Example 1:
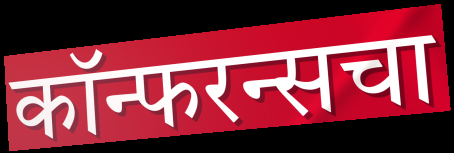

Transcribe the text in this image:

कॉन्फरन्सचा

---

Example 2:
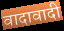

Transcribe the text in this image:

वादावादी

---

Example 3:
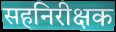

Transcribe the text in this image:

सहनिरीक्षक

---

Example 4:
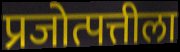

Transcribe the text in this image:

प्रजोत्पत्तीला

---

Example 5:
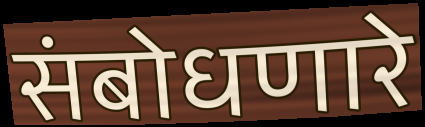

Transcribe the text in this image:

संबोधणारे